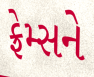
ફ્રેમ્સને